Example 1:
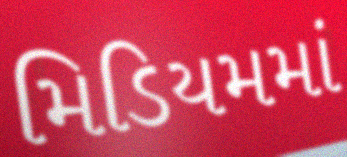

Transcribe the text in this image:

મિડિયમમાં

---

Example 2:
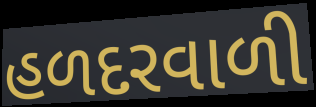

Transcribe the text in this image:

હળદરવાળી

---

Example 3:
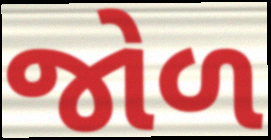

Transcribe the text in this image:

જોળ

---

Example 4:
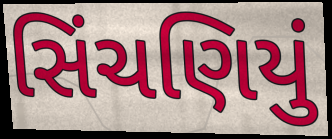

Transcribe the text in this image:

સિંચણિયું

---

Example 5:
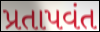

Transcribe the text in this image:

પ્રતાપવંત